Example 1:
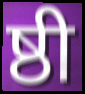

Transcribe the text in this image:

ष्ठी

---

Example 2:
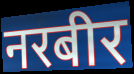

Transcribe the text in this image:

नरबीर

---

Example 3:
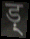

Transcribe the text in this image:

ड़्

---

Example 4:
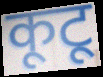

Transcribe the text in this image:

कूटू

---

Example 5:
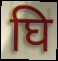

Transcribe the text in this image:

घि